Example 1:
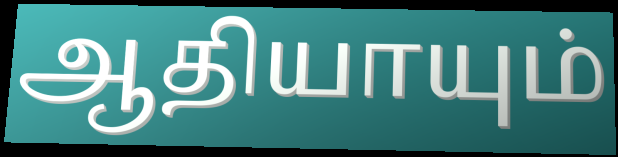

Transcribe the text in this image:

ஆதியாயும்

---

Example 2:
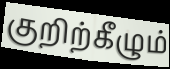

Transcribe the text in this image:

குறிற்கீழும்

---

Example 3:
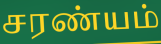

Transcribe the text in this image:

சரண்யம்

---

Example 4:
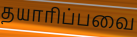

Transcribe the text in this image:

தயாரிப்பவை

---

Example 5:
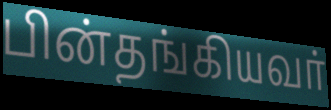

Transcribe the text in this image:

பின்தங்கியவர்